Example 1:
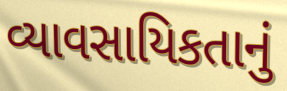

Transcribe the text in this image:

વ્યાવસાયિકતાનું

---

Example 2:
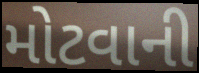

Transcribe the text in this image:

મોટવાની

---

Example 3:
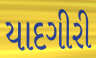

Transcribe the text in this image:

યાદગીરી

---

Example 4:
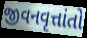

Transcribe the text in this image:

જીવનવૃત્તાંતો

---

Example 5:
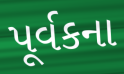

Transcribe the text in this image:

પૂર્વકના